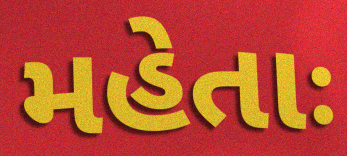
મહેતાઃ